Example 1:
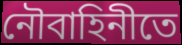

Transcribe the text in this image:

নৌবাহিনীতে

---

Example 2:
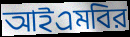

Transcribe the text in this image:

আইএমবির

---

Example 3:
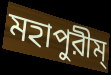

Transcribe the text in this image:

মহাপুরীম্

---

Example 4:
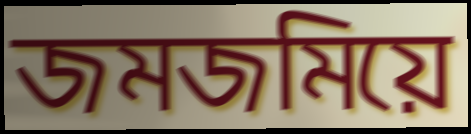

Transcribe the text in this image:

জমজমিয়ে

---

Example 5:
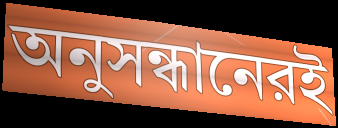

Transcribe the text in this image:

অনুসন্ধানেরই